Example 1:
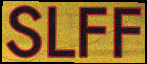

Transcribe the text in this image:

SLFF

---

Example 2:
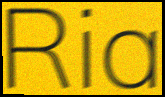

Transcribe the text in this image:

Ria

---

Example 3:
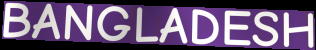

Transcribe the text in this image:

BANGLADESH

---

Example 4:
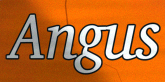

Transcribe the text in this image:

Angus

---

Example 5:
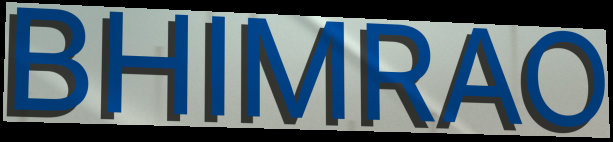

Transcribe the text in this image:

BHIMRAO